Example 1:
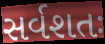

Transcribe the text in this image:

સર્વશતઃ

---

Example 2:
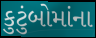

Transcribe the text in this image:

કુટુંબોમાંના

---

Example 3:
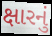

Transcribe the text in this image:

ક્ષારનું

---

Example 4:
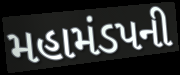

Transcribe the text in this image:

મહામંડપની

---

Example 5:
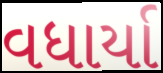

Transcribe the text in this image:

વધાર્યા